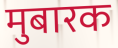
मुबारक